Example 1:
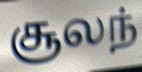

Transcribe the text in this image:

சூலந்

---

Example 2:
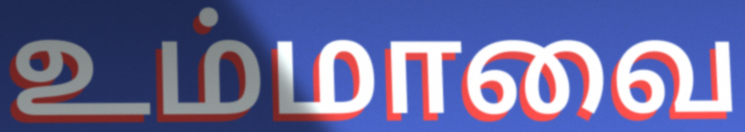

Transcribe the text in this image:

உம்மாவை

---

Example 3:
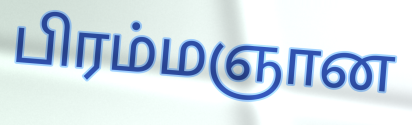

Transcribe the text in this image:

பிரம்மஞான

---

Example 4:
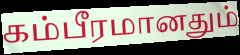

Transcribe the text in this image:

கம்பீரமானதும்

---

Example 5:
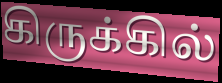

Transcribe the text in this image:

கிருக்கில்